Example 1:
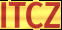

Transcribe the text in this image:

ITCZ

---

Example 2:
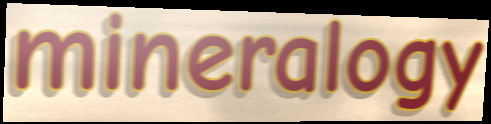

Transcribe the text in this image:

mineralogy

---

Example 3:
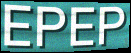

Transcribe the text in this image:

EPEP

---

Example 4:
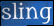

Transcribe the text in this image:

sling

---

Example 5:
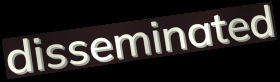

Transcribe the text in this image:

disseminated